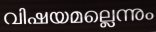
വിഷയമല്ലെന്നും